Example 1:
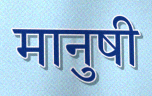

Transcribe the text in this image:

मानुषी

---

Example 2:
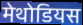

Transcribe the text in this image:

मेथोडियस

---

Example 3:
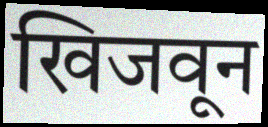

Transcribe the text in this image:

खिजवून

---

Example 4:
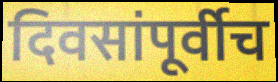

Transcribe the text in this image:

दिवसांपूर्वीच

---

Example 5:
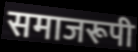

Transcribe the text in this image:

समाजरूपी